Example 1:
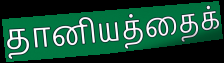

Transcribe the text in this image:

தானியத்தைக்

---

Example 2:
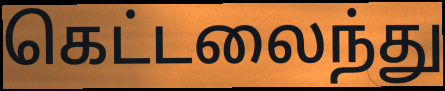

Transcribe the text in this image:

கெட்டலைந்து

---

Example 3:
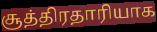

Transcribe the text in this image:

சூத்திரதாரியாக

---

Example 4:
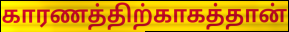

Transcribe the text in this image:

காரணத்திற்காகத்தான்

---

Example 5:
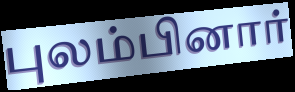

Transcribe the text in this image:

புலம்பினார்